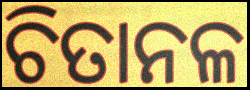
ଚିତାନଳ